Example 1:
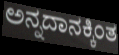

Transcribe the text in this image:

ಅನ್ನದಾನಕ್ಕಿಂತ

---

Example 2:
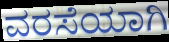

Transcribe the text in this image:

ವರಸೆಯಾಗಿ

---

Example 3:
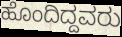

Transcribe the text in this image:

ಹೊಂದಿದ್ದವರು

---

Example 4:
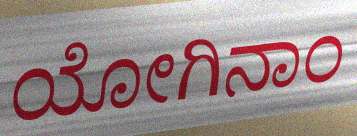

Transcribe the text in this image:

ಯೋಗಿನಾಂ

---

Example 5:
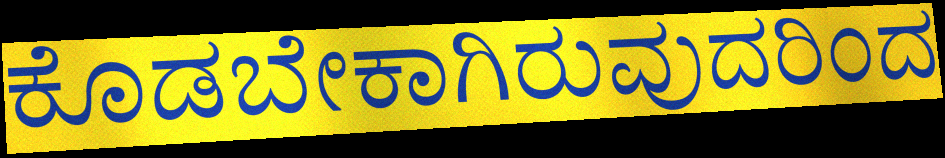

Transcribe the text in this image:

ಕೊಡಬೇಕಾಗಿರುವುದರಿಂದ